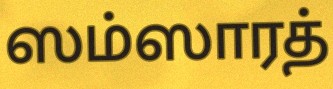
ஸம்ஸாரத்